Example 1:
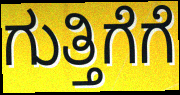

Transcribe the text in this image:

ಗುತ್ತಿಗೆಗೆ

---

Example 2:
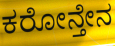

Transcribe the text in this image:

ಕರೋನ್ತೇನ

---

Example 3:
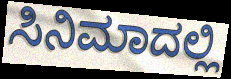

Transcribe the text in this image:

ಸಿನಿಮಾದಲ್ಲಿ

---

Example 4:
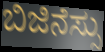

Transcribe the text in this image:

ಬಿಜಿನೆಸ್ಸು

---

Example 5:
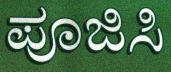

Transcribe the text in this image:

ಪೂಜಿಸಿ